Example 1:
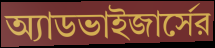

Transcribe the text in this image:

অ্যাডভাইজার্সের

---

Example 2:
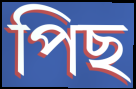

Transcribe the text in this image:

পিছ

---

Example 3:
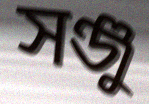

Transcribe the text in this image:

সঞ্জু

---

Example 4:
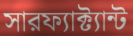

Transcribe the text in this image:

সারফ্যাক্ট্যান্ট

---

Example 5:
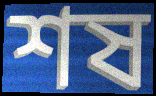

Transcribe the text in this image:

শষ